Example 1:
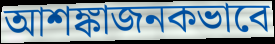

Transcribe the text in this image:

আশঙ্কাজনকভাবে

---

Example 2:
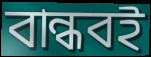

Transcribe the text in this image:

বান্ধবই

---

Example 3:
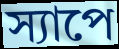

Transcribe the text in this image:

স্যাপে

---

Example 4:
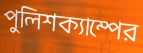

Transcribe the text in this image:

পুলিশক্যাম্পের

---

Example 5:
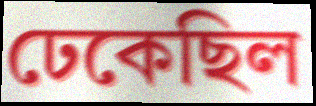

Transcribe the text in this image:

ঢেকেছিল